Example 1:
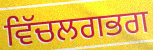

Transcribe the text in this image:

ਵਿੱਚਲਗਭਗ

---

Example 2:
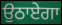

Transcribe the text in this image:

ਉਠਾਏਗਾ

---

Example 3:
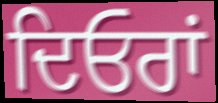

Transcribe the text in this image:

ਦਿਓਰਾਂ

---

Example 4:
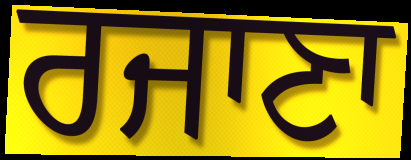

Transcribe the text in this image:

ਰਜਾਣਾ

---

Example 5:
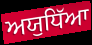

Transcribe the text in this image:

ਅਯੁਧਿੱਆ